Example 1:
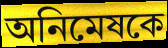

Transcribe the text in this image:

অনিমেষকে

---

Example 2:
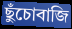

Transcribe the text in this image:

ছুঁচোবাজি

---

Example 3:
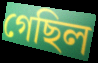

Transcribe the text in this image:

গেছিল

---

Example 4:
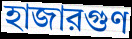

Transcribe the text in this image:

হাজারগুণ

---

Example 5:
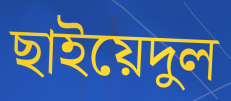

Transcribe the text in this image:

ছাইয়েদুল